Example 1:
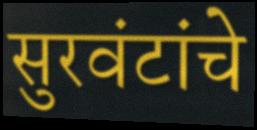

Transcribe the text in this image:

सुरवंटांचे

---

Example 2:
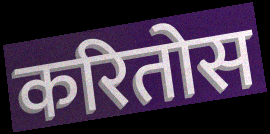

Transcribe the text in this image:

करितोस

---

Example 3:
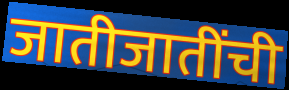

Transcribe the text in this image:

जातीजातींची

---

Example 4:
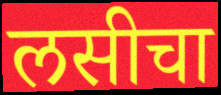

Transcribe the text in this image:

लसीचा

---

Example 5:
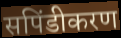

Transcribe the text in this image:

सपिंडीकरण